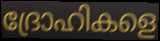
ദ്രോഹികളെ